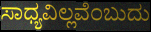
ಸಾಧ್ಯವಿಲ್ಲವೆಂಬುದು